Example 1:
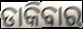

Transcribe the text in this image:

ଡାକିବାର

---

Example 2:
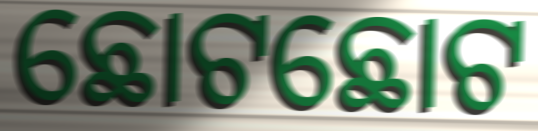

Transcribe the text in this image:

ଛୋଟଛୋଟ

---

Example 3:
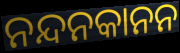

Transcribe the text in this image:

ନନ୍ଦନକାନନ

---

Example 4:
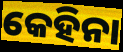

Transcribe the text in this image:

କେହିନା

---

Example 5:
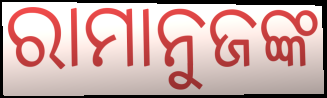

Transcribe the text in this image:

ରାମାନୁଜଙ୍କ